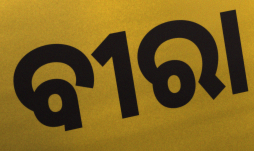
ବୀରା